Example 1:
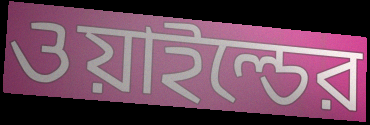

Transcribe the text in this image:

ওয়াইল্ডের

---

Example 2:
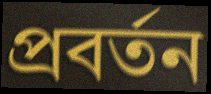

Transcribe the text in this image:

প্রবর্তন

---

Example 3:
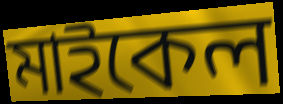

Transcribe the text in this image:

মাইকেল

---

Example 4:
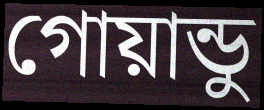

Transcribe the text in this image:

গোয়ান্ডু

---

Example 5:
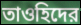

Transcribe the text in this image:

তাওহিদের